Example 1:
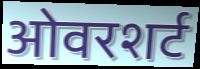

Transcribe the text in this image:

ओवरशर्ट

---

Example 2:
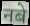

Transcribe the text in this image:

नबे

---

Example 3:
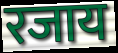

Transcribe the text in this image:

रजाय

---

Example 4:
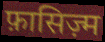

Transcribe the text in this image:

फ़ासिज़्म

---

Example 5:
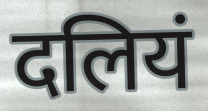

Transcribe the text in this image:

दलियं